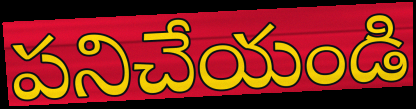
పనిచేయండి